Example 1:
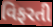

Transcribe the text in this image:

વિફરતી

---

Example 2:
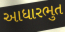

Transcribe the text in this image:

આધારભુત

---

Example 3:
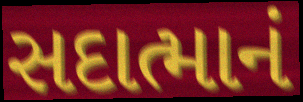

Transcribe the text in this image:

સદાત્માનં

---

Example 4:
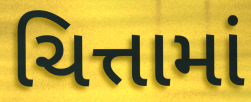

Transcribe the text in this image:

ચિત્તામાં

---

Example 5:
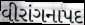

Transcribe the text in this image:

વીરાંગનાપદ